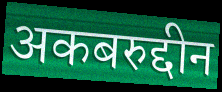
अकबरुद्दीन